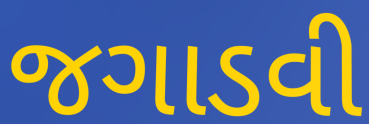
જગાડવી